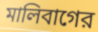
মালিবাগের